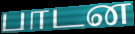
பாடன